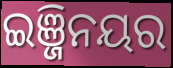
ଇଞ୍ଜିନୟର